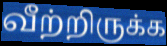
வீற்றிருக்க